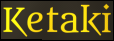
Ketaki